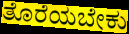
ತೊರೆಯಬೇಕು